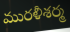
మురళీశర్మ